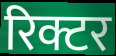
रिक्टर